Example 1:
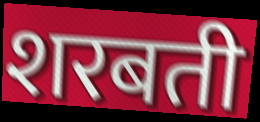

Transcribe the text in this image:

शरबती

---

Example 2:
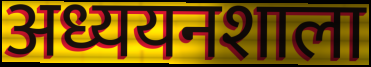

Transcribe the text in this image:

अध्ययनशाला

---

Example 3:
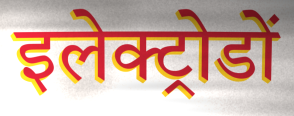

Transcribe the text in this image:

इलेक्ट्रोडों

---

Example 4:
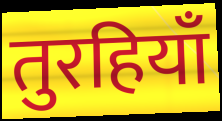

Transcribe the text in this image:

तुरहियाँ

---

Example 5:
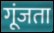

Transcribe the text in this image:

गूंजता